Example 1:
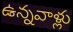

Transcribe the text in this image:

ఉన్నవాళ్లు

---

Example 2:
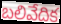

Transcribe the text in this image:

బలివేదిక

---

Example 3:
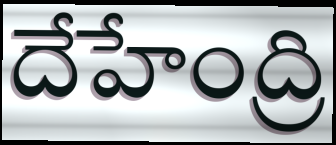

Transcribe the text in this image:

దేహేంద్రి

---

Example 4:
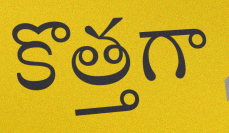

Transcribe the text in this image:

కొత్తగా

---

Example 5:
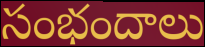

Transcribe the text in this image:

సంభందాలు